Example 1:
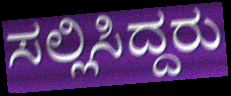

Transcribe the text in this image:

ಸಲ್ಲಿಸಿದ್ದರು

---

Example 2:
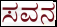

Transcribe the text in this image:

ಸವನ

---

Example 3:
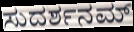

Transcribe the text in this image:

ಸುದರ್ಶನಮ್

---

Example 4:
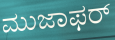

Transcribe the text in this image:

ಮುಜಾಫರ್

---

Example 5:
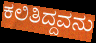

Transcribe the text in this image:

ಕಲಿತಿದ್ದವನು